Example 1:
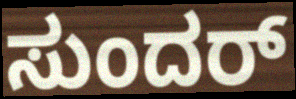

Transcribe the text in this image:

ಸುಂದರ್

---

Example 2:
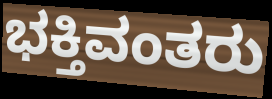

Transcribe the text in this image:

ಭಕ್ತಿವಂತರು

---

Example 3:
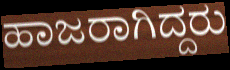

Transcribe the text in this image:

ಹಾಜರಾಗಿದ್ದರು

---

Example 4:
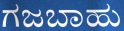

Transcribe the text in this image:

ಗಜಬಾಹು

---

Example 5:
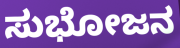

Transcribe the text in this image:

ಸುಭೋಜನ